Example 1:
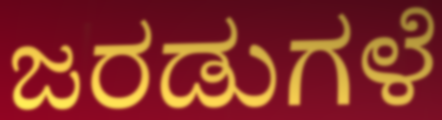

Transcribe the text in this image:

ಜರಡುಗಳೆ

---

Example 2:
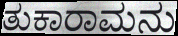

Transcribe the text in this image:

ತುಕಾರಾಮನು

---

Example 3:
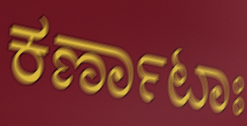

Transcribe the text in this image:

ಕರ್ಣಾಟಾಃ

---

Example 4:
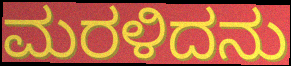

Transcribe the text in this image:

ಮರಳಿದನು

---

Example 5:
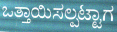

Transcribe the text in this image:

ಒತ್ತಾಯಿಸಲ್ಪಟ್ಟಾಗ